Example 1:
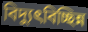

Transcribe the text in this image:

বিদ্যুৎবিচ্ছিন্ন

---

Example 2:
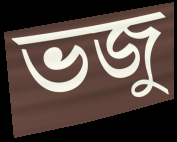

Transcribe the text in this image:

ভজু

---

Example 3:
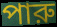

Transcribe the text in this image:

পারু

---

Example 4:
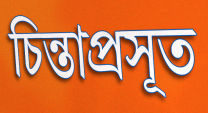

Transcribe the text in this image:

চিন্তাপ্রসূত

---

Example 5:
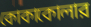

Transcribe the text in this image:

কোকাকোলার